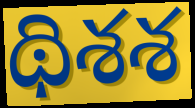
థిశశ